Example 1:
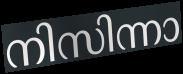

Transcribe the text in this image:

നിസിന്നാ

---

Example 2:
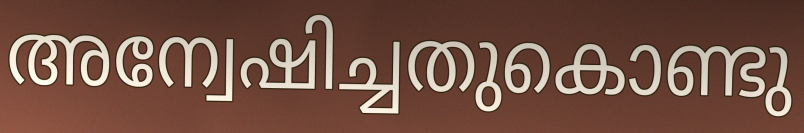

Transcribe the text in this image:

അന്വേഷിച്ചതുകൊണ്ടു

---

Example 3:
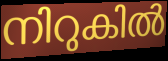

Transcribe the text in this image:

നിറുകിൽ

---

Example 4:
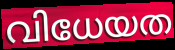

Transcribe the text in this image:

വിധേയത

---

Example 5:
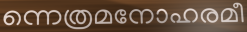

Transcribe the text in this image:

ന്നെത്രമനോഹരമീ